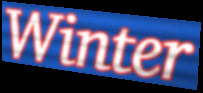
Winter